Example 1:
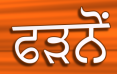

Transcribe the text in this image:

ਫੜਨੋਂ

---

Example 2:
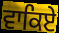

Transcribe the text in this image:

ਵਾਕਿਏ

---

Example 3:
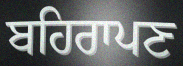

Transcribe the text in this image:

ਬਹਿਰਾਪਣ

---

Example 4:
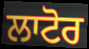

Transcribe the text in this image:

ਲਾਟੋਰ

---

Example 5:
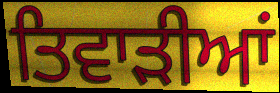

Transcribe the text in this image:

ਤਿਵਾੜੀਆਂ